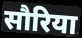
सौरिया